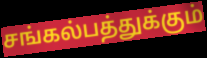
சங்கல்பத்துக்கும்